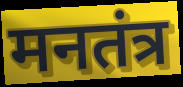
मनतंत्र